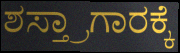
ಶಸ್ತ್ರಾಗಾರಕ್ಕೆ